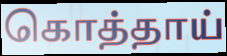
கொத்தாய்